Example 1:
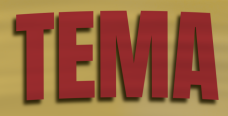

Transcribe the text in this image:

TEMA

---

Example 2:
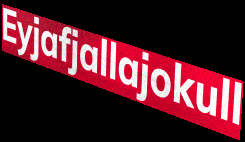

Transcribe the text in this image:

Eyjafjallajokull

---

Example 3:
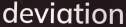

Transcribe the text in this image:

deviation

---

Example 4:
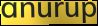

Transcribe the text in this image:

anurup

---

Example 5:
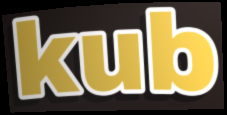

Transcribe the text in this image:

kub